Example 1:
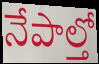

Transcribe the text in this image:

నేపాల్తో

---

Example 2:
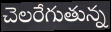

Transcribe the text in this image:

చెలరేగుతున్న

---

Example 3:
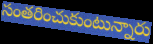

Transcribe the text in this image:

సంతరించుకుంటున్నారు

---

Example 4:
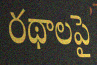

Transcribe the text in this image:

రథాలపై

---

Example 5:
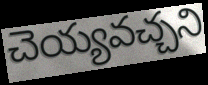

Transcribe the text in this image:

చెయ్యవచ్చని